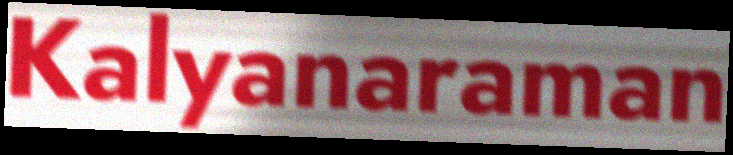
Kalyanaraman